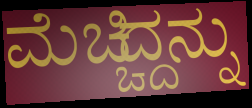
ಮೆಚ್ಚಿದ್ದನ್ನು